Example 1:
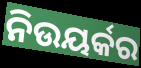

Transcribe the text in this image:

ନିଉୟର୍କର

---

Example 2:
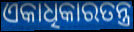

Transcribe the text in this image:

ଏକାଧିକାରତନ୍ତ୍ର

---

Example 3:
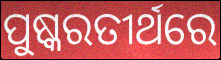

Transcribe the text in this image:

ପୁଷ୍କରତୀର୍ଥରେ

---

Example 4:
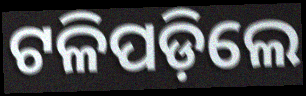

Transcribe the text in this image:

ଟଳିପଡ଼ିଲେ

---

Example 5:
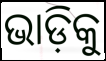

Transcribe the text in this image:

ଭାଡ଼ିକୁ